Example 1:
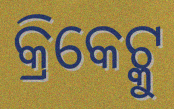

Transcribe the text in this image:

କ୍ରିକେଟ୍କୁ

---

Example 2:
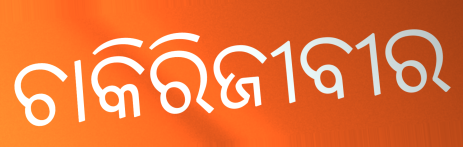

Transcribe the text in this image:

ଚାକିରିଜୀବୀର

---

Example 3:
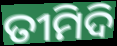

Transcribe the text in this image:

ତୀମିଦି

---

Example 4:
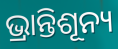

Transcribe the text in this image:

ଭ୍ରାନ୍ତିଶୂନ୍ୟ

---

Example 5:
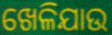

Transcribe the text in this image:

ଖେଳିଯାଉ